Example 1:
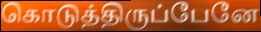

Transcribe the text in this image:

கொடுத்திருப்பேனே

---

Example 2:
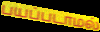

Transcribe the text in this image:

பயப்படாமல்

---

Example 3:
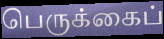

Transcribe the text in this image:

பெருக்கைப்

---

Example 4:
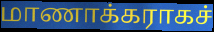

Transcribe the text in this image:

மாணாக்கராகச்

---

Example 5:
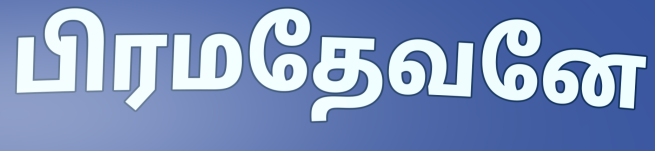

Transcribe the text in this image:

பிரமதேவனே